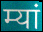
म्यां